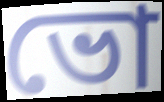
ভো